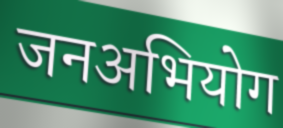
जनअभियोग